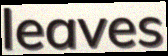
leaves